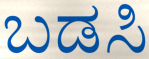
ಬಡಸಿ